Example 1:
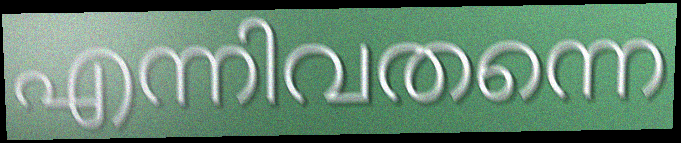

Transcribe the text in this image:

എന്നിവതന്നെ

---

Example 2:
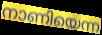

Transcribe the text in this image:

നാണിയെന്ന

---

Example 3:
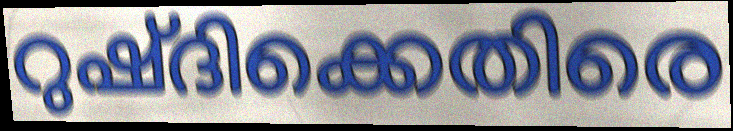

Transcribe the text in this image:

റുഷ്ദിക്കെതിരെ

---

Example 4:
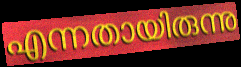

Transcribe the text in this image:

എന്നതായിരുന്നു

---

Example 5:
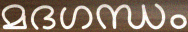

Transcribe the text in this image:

മദഗന്ധം